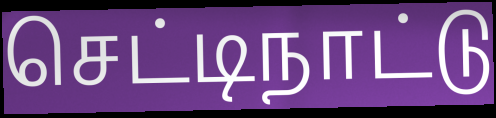
செட்டிநாட்டு